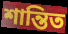
শান্তিত